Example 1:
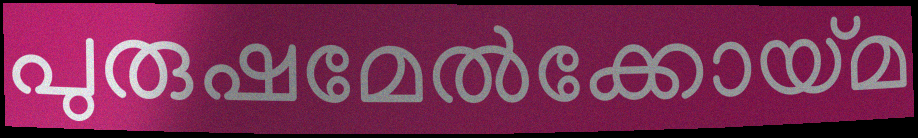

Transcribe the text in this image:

പുരുഷമേൽക്കോയ്മ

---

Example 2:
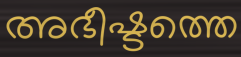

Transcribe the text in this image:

അഭീഷ്ടത്തെ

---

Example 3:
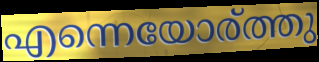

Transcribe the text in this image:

എന്നെയോര്ത്തു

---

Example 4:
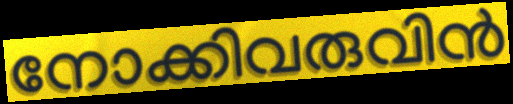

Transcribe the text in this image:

നോക്കിവരുവിൻ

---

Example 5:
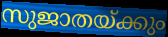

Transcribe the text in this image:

സുജാതയ്ക്കും